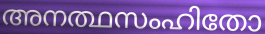
അനത്ഥസംഹിതോ